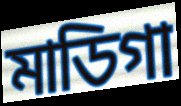
মাডিগা